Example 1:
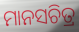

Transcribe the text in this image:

ମାନସଚିତ୍ର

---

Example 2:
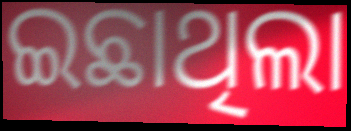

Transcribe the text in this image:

ଇଛାଥିଲା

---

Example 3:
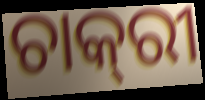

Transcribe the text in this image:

ଚାକ୍‌ରୀ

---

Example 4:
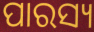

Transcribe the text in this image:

ପାରସ୍ଯ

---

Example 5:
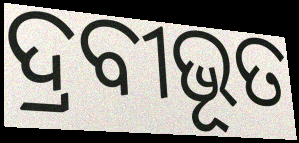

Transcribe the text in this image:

ଦ୍ରବୀଭୂତ